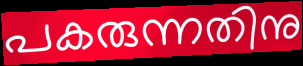
പകരുന്നതിനു